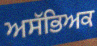
ਅਸੱਭਿਅਕ